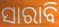
ସାରାବି